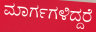
ಮಾರ್ಗಗಳಿದ್ದರೆ